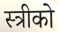
स्त्रीको